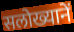
सलोख्यानें